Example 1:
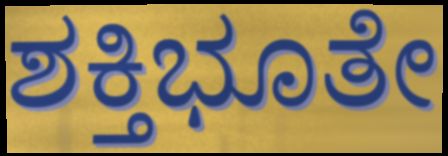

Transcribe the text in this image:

ಶಕ್ತಿಭೂತೇ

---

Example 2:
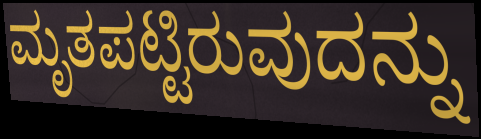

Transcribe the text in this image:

ಮೃತಪಟ್ಟಿರುವುದನ್ನು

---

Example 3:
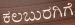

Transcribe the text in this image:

ಕಲಬುರಗಿಗೆ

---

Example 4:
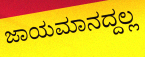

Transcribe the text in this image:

ಜಾಯಮಾನದ್ದಲ್ಲ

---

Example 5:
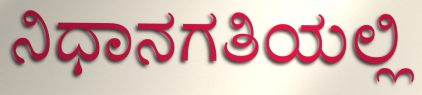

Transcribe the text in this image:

ನಿಧಾನಗತಿಯಲ್ಲಿ